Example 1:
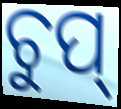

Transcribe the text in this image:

ଚୁପ୍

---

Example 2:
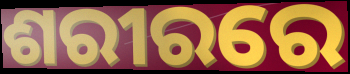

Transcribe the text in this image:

ଶରୀରରେ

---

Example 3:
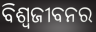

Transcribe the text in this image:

ବିଶ୍ଵଜୀବନର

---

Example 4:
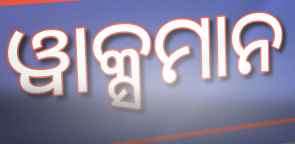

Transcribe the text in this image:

ୱାକ୍ସମାନ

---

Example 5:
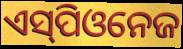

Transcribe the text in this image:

ଏସ୍‌ପିଓନେଜ